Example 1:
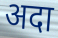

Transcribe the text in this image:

अदा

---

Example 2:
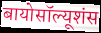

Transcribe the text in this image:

बायोसॉल्यूशंस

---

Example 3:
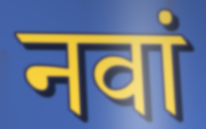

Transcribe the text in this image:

नवां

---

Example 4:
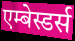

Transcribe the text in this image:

एम्बेस्डर्स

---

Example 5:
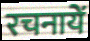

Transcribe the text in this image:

रचनायें